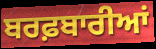
ਬਰਫ਼ਬਾਰੀਆਂ